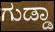
ಗುಡ್ಡಾ